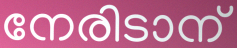
നേരിടാന്